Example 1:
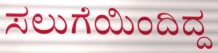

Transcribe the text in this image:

ಸಲುಗೆಯಿಂದಿದ್ದ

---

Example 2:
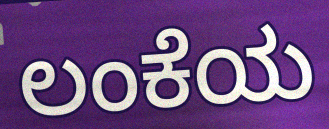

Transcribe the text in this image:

ಲಂಕೆಯ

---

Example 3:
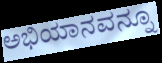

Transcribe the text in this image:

ಅಭಿಯಾನವನ್ನೂ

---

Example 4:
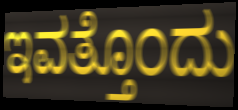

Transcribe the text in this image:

ಇವತ್ತೊಂದು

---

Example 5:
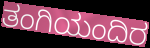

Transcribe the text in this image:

ತಂಗಿಯಂದಿರ